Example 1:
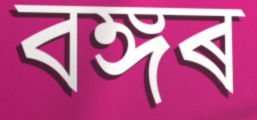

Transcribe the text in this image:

বঙ্গৰ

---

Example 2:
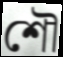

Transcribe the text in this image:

শৌ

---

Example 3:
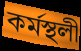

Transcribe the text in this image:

কৰ্মস্থলী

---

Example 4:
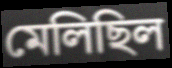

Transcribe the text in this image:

মেলিছিল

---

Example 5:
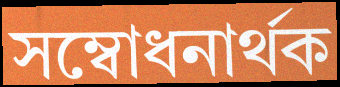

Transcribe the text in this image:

সম্বোধনাৰ্থক